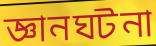
জ্ঞানঘটনা